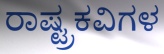
ರಾಷ್ಟ್ರಕವಿಗಳ